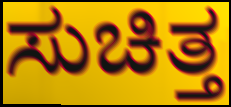
ಸುಚಿತ್ತ